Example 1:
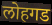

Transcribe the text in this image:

लोहगड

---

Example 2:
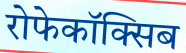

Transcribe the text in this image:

रोफेकॉक्सिब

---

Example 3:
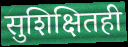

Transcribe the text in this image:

सुशिक्षितही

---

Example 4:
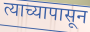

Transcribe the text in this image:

त्याच्यापासून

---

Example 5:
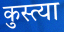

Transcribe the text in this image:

कुस्त्या